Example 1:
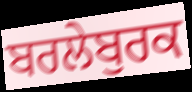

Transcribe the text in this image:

ਬਰਲੇਬੁਰਕ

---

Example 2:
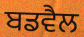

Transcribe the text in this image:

ਬਡਵੈਲ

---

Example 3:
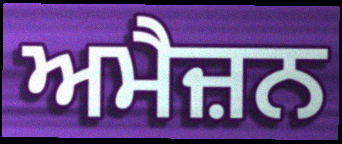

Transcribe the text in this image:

ਅਮੈਜ਼ਨ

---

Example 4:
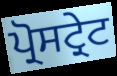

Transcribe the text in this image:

ਪ੍ਰੋਸਟ੍ਰੇਟ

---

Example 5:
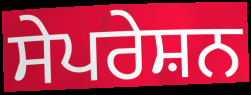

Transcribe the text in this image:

ਸੇਪਰੇਸ਼ਨ